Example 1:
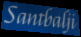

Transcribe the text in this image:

Santbalji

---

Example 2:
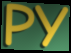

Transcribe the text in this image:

PY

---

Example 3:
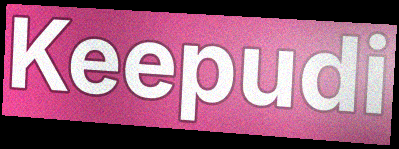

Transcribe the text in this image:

Keepudi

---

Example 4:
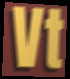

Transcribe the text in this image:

Vt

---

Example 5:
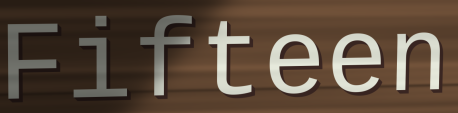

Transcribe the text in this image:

Fifteen